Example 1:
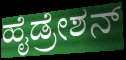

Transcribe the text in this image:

ಹೈಡ್ರೇಶನ್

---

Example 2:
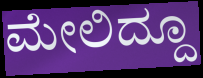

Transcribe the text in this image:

ಮೇಲಿದ್ದೂ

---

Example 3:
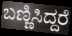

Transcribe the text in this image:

ಬಣ್ಣಿಸಿದ್ದರೆ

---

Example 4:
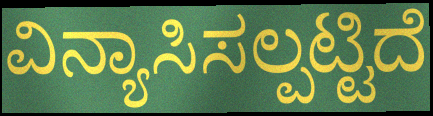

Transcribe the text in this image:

ವಿನ್ಯಾಸಿಸಲ್ಪಟ್ಟಿದೆ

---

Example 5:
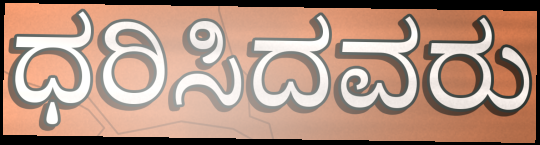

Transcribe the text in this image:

ಧರಿಸಿದವರು